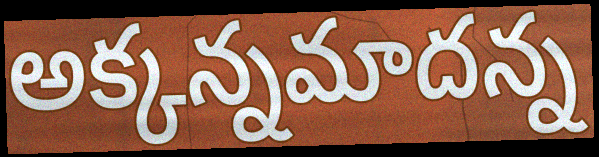
అక్కన్నమాదన్న